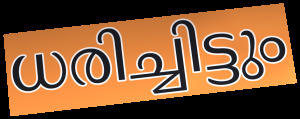
ധരിച്ചിട്ടും